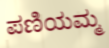
ಪಣಿಯಮ್ಮ